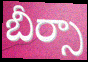
బీర్సా